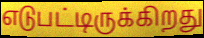
எடுபட்டிருக்கிறது